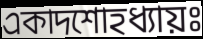
একাদশোহধ্যায়ঃ